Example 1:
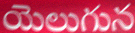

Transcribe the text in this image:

యెలుగున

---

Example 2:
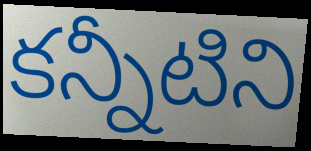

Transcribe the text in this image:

కన్నీటిని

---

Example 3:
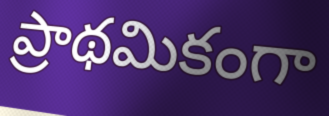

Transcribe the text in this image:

ప్రాథమికంగా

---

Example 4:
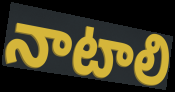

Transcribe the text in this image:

నాటాలి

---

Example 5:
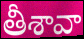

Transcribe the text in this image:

తీశావా